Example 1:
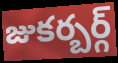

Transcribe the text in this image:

జుకర్బర్గ్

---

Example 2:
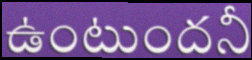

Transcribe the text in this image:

ఉంటుందనీ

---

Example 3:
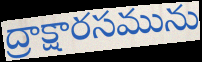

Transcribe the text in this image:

ద్రాక్షారసమును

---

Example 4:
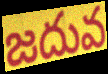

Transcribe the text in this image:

జదువ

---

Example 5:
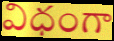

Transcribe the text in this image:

విధంగా